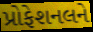
પ્રોફેશનલને